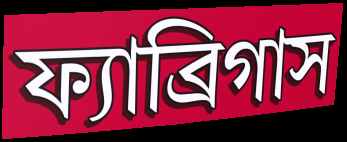
ফ্যাব্রিগাস